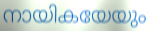
നായികയേയും